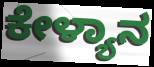
ಕೇಳ್ಯಾನ